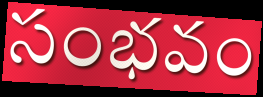
సంభవం